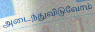
அடைந்துவிடுவோம்